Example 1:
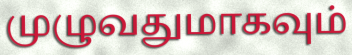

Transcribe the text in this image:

முழுவதுமாகவும்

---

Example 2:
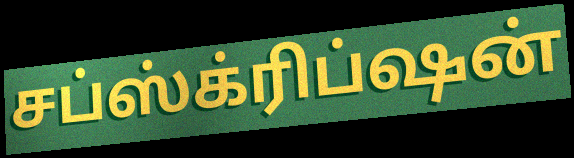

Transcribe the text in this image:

சப்ஸ்க்ரிப்ஷன்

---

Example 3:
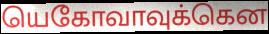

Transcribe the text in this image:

யெகோவாவுக்கென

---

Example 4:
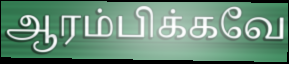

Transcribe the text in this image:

ஆரம்பிக்கவே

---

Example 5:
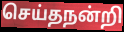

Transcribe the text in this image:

செய்தநன்றி